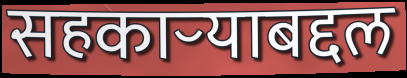
सहकाऱ्याबद्दल